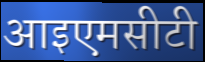
आइएमसीटी